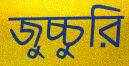
জুচ্চুরি